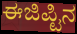
ಈಜಿಪ್ಟಿನ